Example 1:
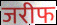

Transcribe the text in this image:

जरीफ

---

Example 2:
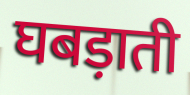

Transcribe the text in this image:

घबड़ाती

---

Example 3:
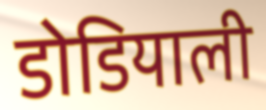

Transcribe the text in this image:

डोडियाली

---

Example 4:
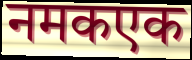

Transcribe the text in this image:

नमकएक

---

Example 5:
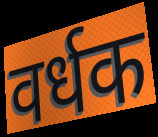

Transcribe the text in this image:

वर्धक